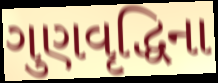
ગુણવૃદ્ધિના